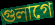
গুলাগে